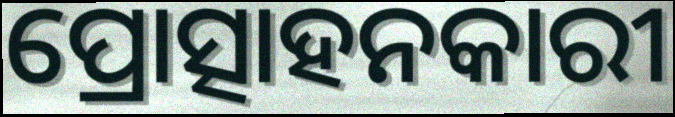
ପ୍ରୋତ୍ସାହନକାରୀ